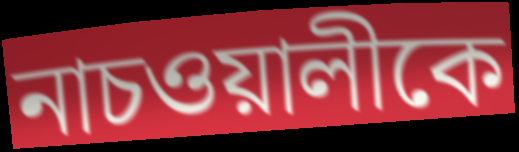
নাচওয়ালীকে